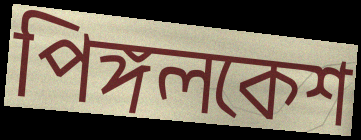
পিঙ্গলকেশ